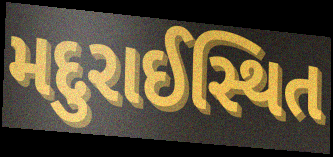
મદુરાઈસ્થિત